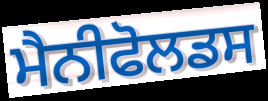
ਮੈਨੀਫੋਲਡਸ